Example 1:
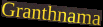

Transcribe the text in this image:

Granthnama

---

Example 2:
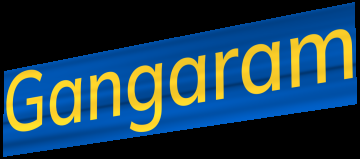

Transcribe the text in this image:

Gangaram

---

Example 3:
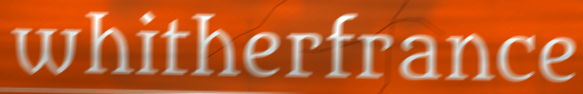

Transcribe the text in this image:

whitherfrance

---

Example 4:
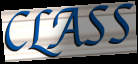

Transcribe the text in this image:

CLASS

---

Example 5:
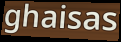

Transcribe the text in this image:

ghaisas